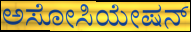
ಅಸೋಸಿಯೇಷನ್